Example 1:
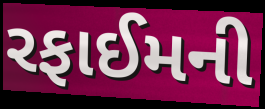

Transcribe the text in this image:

રફાઈમની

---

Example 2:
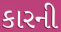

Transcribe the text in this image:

કારની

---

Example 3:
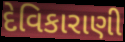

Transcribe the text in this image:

દેવિકારાણી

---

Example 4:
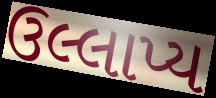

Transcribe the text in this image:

ઉલ્લાપ્ય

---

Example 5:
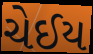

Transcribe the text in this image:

ચેઈય